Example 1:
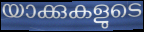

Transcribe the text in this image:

യാക്കുകളുടെ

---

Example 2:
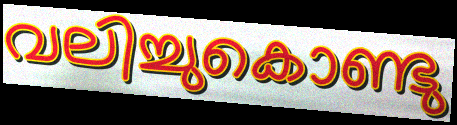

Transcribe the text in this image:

വലിച്ചുകൊണ്ടു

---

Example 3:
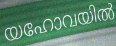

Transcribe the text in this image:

യഹോവയിൽ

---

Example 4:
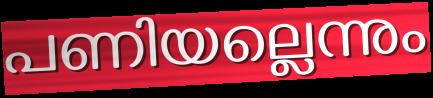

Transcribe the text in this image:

പണിയല്ലെന്നും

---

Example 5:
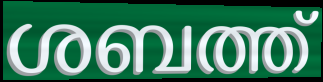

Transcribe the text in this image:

ശബത്ത്